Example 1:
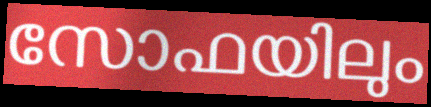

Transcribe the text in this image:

സോഫയിലും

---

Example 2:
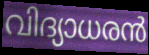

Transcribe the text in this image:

വിദ്യാധരൻ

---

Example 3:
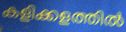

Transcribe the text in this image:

കളിക്കളത്തിൽ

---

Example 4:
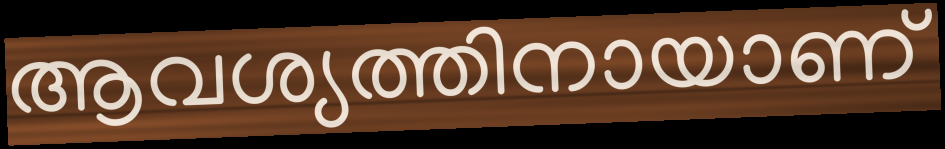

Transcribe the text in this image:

ആവശ്യത്തിനായാണ്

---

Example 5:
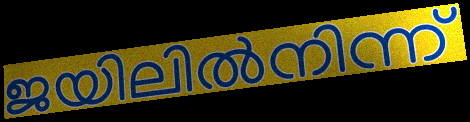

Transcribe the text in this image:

ജയിലിൽനിന്ന്